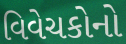
વિવેચકોનો